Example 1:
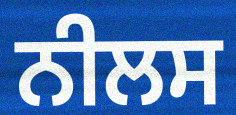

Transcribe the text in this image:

ਨੀਲਸ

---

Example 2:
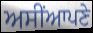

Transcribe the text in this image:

ਅਸੀਂਆਪਣੇ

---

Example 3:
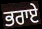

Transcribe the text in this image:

ਭਰਾਏ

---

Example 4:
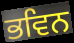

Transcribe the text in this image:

ਭਵਿਨ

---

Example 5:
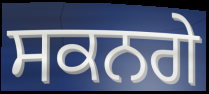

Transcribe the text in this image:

ਸਕਨਗੇ